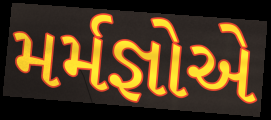
મર્મજ્ઞોએ